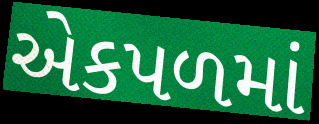
એકપળમાં